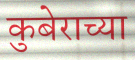
कुबेराच्या